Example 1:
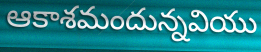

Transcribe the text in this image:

ఆకాశమందున్నవియు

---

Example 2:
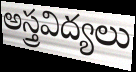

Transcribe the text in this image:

అస్త్రవిద్యలు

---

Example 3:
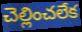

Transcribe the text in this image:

చెల్లించలేక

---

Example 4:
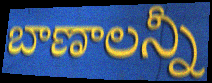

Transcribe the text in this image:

బాణాలన్నీ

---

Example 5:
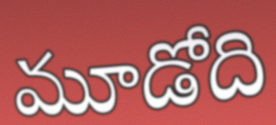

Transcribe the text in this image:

మూడోది